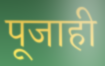
पूजाही